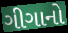
ગીગાનો